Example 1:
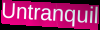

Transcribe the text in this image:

Untranquil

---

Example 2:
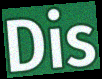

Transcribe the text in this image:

Dis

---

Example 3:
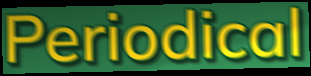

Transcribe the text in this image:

Periodical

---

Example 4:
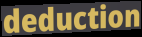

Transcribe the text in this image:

deduction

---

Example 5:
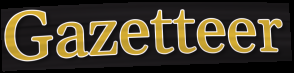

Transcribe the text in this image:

Gazetteer